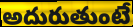
అదురుతుంటే